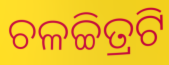
ଚଳଚ୍ଚିତ୍ରଟି